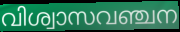
വിശ്വാസവഞ്ചന